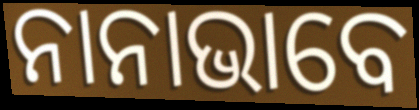
ନାନାଭାବେ